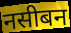
नसीबन